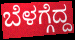
ಬೆಳಗ್ಗೆದ್ದ